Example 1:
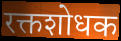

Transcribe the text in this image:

रक्तशोधक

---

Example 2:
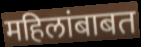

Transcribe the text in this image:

महिलांबाबत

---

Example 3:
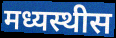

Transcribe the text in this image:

मध्यस्थीस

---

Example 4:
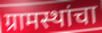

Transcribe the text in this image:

ग्रामस्थांचा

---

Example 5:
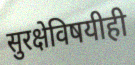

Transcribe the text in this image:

सुरक्षेविषयीही